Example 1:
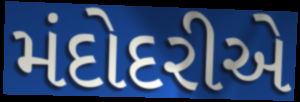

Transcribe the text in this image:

મંદોદરીએ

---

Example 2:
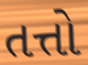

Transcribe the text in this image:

તત્તો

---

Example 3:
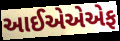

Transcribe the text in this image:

આઈએએએફ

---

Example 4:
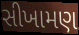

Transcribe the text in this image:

સીખામણ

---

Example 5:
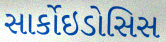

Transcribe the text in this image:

સાર્કોઇડોસિસ